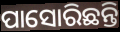
ପାସୋରିଛନ୍ତି